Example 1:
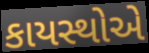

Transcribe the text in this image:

કાયસ્થોએ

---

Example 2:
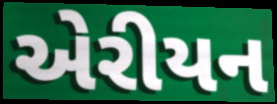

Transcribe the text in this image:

એરીયન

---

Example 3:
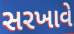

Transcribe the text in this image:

સરખાવે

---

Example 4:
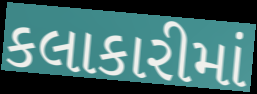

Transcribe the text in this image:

કલાકારીમાં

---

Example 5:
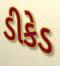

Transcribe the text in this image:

ડીકેડ